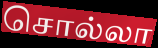
சொல்லா